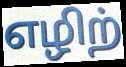
எழிற்